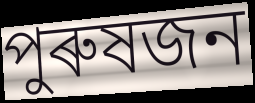
পুৰুষজন